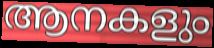
ആനകളും